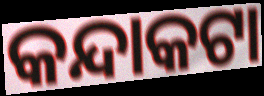
କନ୍ଦାକଟା